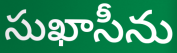
సుఖాసీను